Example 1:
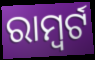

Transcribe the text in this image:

ରାମ୍ବର୍ଟ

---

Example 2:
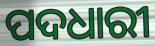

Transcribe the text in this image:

ପଦଧାରୀ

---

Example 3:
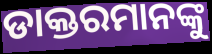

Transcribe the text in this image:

ଡାକ୍ତରମାନଙ୍କୁ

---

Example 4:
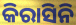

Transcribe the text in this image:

କିରାସିନି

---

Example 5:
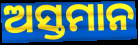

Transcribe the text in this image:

ଅସ୍ତମାନ